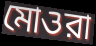
মোওরা